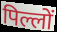
पिल्लों